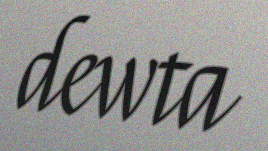
dewta